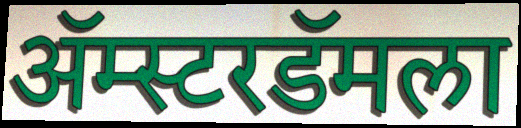
ॲम्स्टरडॅमला